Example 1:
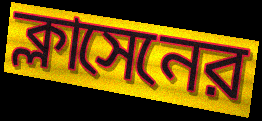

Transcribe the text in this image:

ক্লাসেনের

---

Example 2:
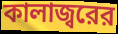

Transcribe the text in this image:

কালাজ্বরের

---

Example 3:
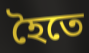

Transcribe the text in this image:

হৈতে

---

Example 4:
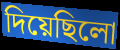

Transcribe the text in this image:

দিয়েছিলো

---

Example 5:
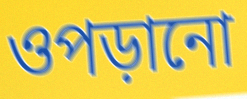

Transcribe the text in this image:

ওপড়ানো